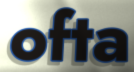
ofta